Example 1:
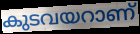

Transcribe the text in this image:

കുടവയറാണ്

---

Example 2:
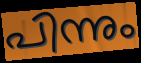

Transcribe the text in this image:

പിന്നും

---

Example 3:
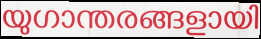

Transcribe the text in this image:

യുഗാന്തരങ്ങളായി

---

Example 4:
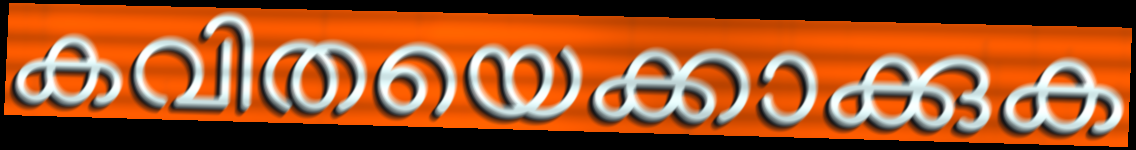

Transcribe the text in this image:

കവിതയെക്കാക്കുക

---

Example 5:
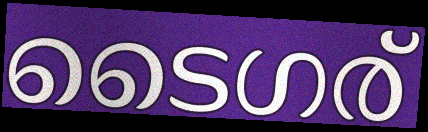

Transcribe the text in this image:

ടൈഗര്